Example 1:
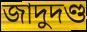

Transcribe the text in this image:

জাদুদণ্ড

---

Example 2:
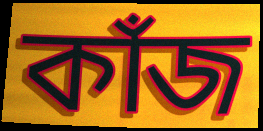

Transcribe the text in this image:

কাঁজ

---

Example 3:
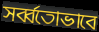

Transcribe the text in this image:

সর্ব্বতোভাবে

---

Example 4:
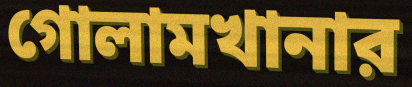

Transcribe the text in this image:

গোলামখানার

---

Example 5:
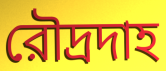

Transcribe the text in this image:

রৌদ্রদাহ